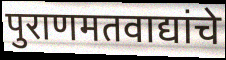
पुराणमतवाद्यांचे